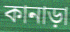
কানাড়া